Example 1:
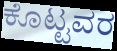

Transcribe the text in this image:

ಕೊಟ್ಟವರ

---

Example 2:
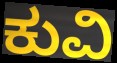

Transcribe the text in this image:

ಕುವಿ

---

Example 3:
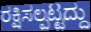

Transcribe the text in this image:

ರಕ್ಷಿಸಲ್ಪಟ್ಟದ್ದು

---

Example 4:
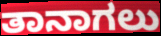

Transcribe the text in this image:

ತಾನಾಗಲು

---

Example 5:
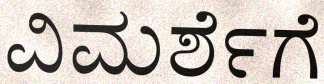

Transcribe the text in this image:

ವಿಮರ್ಶೆಗೆ